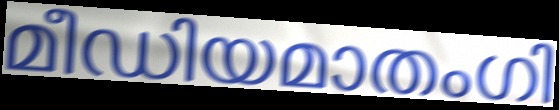
മീഡിയമാതംഗി